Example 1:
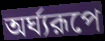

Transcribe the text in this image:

অর্ঘ্যরূপে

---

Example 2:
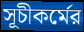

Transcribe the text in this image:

সূচীকর্মের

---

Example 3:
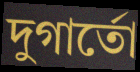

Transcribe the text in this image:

দুগার্তো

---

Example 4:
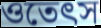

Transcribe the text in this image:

ওতেৎস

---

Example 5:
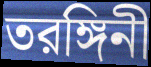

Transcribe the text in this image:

তরঙ্গিনী